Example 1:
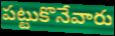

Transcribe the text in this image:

పట్టుకొనేవారు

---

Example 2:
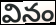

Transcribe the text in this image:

వినం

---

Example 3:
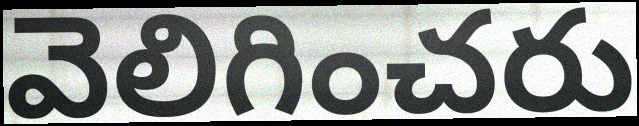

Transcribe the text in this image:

వెలిగించరు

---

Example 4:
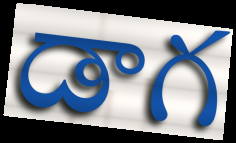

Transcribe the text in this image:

డాగ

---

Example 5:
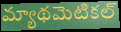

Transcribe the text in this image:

మ్యాథమెటికల్